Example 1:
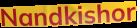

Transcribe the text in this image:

Nandkishor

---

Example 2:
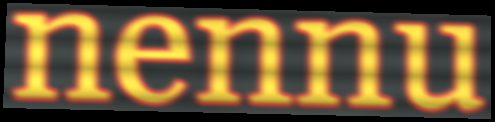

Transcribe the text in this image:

nennu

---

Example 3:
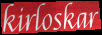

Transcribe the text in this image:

kirloskar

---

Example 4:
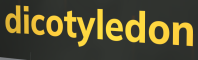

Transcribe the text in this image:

dicotyledon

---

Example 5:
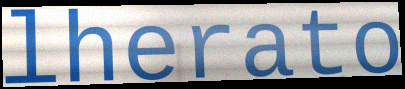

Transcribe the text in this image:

lherato